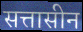
सत्तासीन